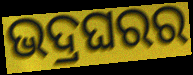
ଭଦ୍ରଘରର